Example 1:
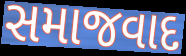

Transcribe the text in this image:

સમાજવાદ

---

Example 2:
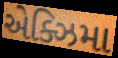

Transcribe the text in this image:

એક્ઝિમા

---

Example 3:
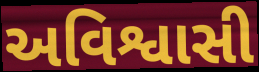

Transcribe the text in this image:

અવિશ્વાસી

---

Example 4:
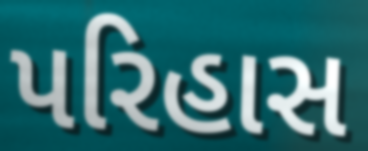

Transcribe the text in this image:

પરિહાસ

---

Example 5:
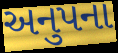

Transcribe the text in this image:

અનુપના